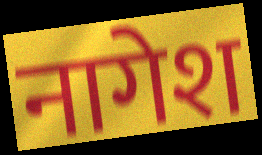
नागेश